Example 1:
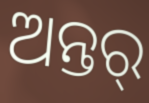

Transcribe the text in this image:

ଅନ୍ତର୍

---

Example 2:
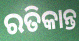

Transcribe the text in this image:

ରତିକାନ୍ତ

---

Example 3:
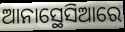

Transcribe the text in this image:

ଆନାସ୍ଥେସିଆରେ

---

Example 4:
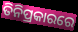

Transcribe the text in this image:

ତିନିପ୍ରକାରରେ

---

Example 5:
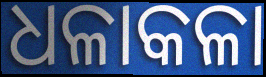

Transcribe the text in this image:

ଧଳାକଳା